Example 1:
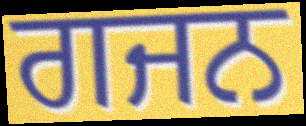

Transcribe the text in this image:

ਗਜਨ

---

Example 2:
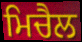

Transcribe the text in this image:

ਮਿਚੈਲ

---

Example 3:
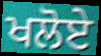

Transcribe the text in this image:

ਖਲੋਏ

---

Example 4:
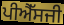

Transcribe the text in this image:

ਪੀਐੱਸਜੀ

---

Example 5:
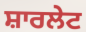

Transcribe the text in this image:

ਸ਼ਾਰਲੇਟ